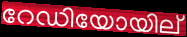
റേഡിയോയില്